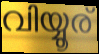
വിയ്യൂര്